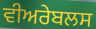
ਵੀਅਰੇਬਲਸ